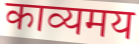
काव्यमय